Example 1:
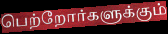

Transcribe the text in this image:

பெற்றோர்களுக்கும்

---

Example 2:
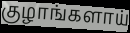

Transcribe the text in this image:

குழாங்களாய்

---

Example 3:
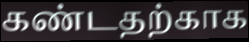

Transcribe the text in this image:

கண்டதற்காக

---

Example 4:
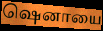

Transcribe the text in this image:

ஷெனாயை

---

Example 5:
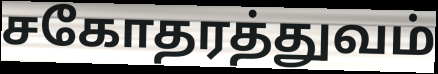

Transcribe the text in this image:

சகோதரத்துவம்